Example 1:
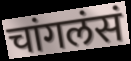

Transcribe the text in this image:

चांगलंसं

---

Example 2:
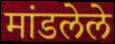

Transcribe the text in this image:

मांडलेले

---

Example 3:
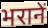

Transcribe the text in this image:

भरानें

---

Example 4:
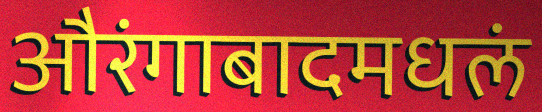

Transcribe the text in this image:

औरंगाबादमधलं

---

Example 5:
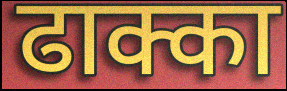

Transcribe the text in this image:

ढाक्का